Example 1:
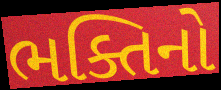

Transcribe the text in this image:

ભક્તિનો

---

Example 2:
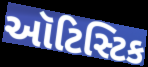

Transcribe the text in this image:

ઑટિસ્ટિક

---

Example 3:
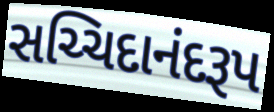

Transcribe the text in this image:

સચ્ચિદાનંદરૂપ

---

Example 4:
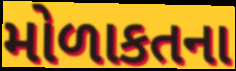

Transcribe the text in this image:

મોળાકતના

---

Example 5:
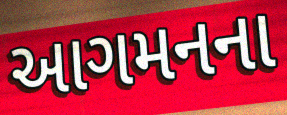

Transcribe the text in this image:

આગમનના